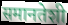
समानतेशी